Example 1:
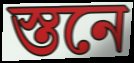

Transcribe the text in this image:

স্তনে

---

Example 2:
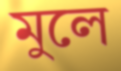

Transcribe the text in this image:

মুলে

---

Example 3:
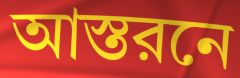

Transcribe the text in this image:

আস্তরনে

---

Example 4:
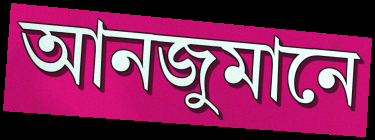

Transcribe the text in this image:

আনজুমানে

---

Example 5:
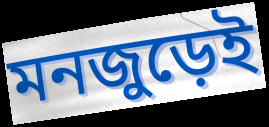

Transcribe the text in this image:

মনজুড়েই